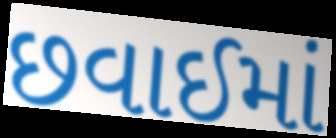
છવાઈમાં